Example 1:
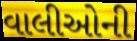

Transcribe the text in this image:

વાલીઓની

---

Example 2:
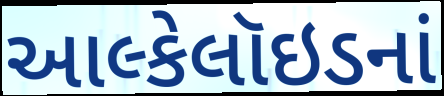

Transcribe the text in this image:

આલ્કેલૉઇડનાં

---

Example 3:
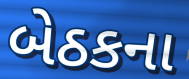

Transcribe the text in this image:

બેઠકના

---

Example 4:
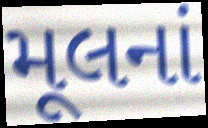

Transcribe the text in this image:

મૂલનાં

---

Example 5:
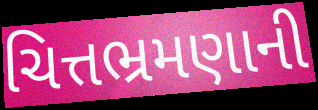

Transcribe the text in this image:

ચિત્તભ્રમણાની